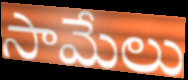
సామేలు